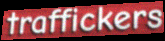
traffickers